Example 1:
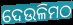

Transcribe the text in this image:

ଦେଉଳିମଠ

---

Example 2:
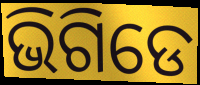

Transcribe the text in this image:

ଭିଗିଡେ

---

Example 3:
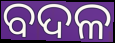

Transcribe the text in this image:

ବଦଳ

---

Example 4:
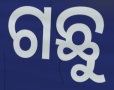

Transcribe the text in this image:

ଗଛୁ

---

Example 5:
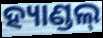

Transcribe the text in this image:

ହ୍ୟାଣ୍ଡଲ୍